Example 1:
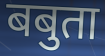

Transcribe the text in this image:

बबुता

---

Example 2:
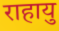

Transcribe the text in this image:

राहायु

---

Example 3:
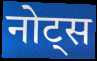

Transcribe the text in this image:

नोट्स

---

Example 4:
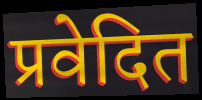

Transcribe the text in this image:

प्रवेदित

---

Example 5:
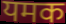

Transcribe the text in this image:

यमक